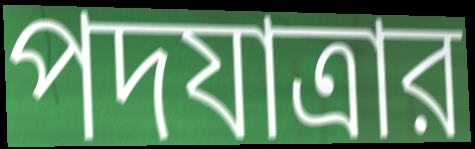
পদযাত্রার